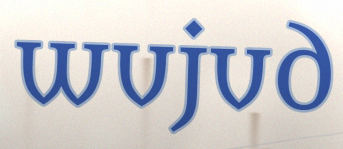
wujud